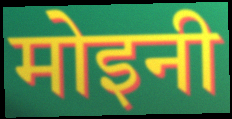
मोइनी